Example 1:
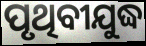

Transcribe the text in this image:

ପୃଥିବୀଯୁଦ୍ଧ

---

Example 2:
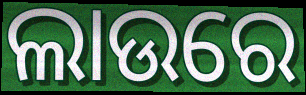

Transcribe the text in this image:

ଲାଉରେ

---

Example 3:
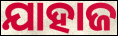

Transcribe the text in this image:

ଯାହାଜ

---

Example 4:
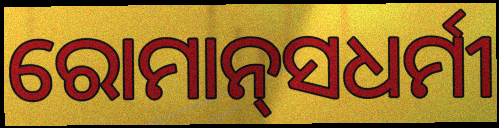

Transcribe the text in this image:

ରୋମାନ୍‍ସଧର୍ମୀ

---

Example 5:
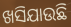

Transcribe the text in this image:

ଖସିଯାଉଛି